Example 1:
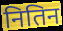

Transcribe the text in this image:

नितिन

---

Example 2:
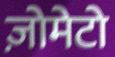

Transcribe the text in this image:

ज़ोमेटो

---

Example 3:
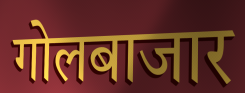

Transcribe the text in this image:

गोलबाजार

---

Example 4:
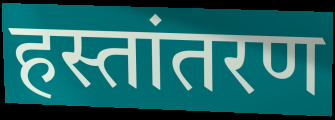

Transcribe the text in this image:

हस्तांतरण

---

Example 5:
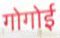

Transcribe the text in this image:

गोगोई